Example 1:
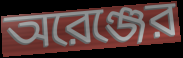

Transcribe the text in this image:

অরেঞ্জের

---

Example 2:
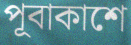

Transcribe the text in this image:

পূবাকাশে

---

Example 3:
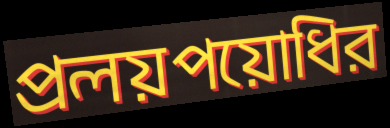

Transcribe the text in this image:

প্রলয়পয়োধির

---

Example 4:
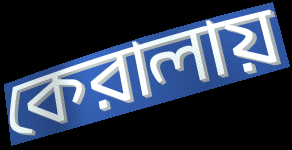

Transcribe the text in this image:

কেরালায়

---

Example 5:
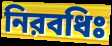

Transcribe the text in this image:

নিরবধিঃ